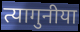
त्यागुनीया